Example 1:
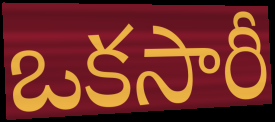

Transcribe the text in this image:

ఒకసారీ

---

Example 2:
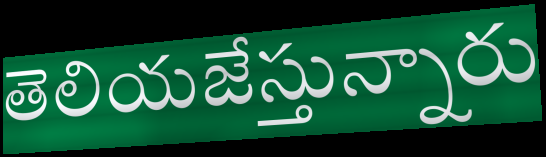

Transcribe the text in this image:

తెలియజేస్తున్నారు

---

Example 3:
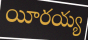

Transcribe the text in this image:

యీరయ్య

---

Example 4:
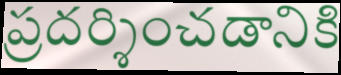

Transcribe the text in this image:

ప్రదర్శించడానికి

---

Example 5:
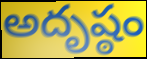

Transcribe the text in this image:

అదృష్ఠం